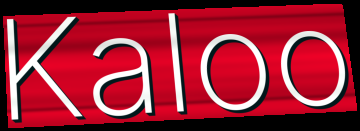
Kaloo